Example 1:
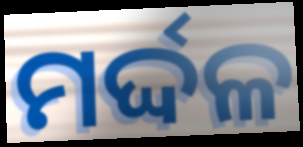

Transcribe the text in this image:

ମର୍ଦ୍ଦଳ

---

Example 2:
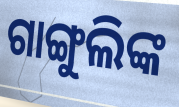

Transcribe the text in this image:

ଗାଙ୍ଗୁଲିଙ୍କ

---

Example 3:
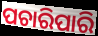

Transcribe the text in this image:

ପଚାରିପାରି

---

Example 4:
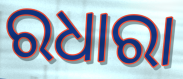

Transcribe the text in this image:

ରଧାରା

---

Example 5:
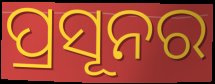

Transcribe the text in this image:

ପ୍ରସୂନର